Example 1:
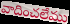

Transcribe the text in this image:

వాదించలేము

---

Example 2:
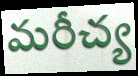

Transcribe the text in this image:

మరీచ్య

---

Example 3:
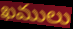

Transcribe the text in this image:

ఖములు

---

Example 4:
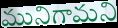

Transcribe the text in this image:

మునిగామని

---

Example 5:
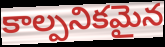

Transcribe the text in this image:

కాల్పనికమైన